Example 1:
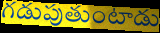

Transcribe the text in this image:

గడుపుతుంటాడు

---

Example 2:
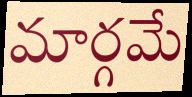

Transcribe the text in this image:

మార్గమే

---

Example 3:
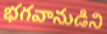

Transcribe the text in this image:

భగవానుడిని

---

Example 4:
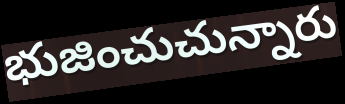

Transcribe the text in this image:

భుజించుచున్నారు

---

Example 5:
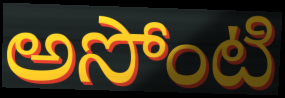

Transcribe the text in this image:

అసోంటి